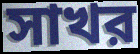
সাখর